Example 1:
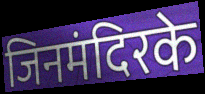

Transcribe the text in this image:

जिनमंदिरके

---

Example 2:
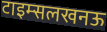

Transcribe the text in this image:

टाइम्सलखनऊ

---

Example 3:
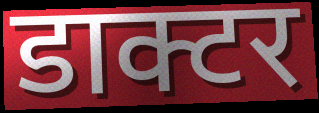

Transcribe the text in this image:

डाक्टर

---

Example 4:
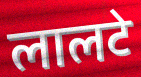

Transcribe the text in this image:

लालटे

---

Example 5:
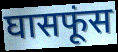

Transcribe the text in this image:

घासफूंस